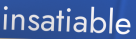
insatiable